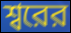
শ্বরের